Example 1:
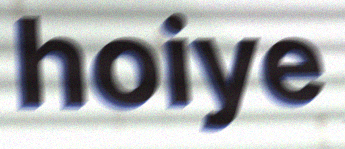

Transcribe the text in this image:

hoiye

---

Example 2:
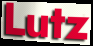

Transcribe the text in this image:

Lutz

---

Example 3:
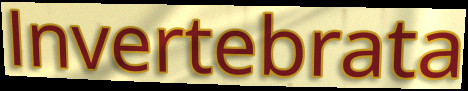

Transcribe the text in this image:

Invertebrata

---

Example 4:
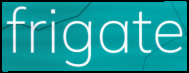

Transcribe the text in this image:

frigate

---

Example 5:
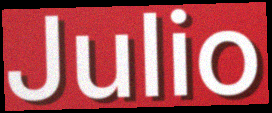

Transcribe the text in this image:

Julio